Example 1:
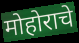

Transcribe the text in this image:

मोहोराचे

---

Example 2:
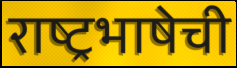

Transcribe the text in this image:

राष्ट्रभाषेची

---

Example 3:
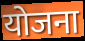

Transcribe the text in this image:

योजना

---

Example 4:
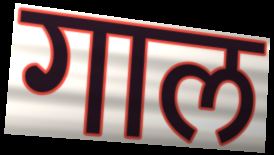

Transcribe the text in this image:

गाल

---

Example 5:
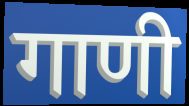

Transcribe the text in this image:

गाणी